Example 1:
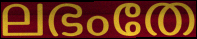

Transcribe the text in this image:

ലഭംതേ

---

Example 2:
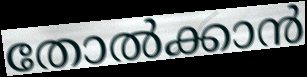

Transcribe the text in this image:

തോൽക്കാൻ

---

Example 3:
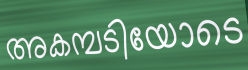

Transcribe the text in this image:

അകമ്പടിയോടെ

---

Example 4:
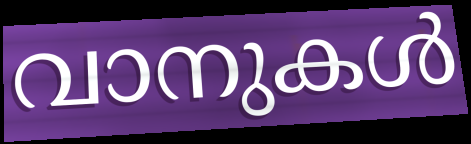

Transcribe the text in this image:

വാനുകൾ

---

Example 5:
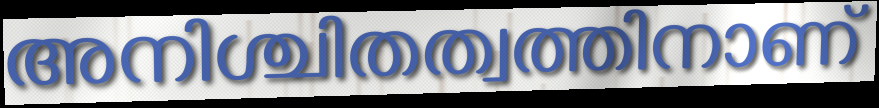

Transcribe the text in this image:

അനിശ്ചിതത്വത്തിനാണ്